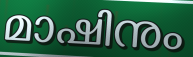
മാഷിനും